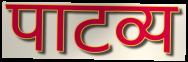
पाटव्य